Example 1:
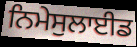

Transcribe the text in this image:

ਨਿਮੇਸੁਲਾਈਡ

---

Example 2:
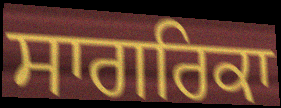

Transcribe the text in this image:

ਸਾਗਰਿਕਾ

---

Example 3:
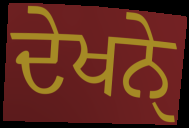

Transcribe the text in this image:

ਦੇਖਨੑੇ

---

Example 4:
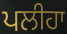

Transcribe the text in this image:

ਪਲੀਹਾ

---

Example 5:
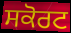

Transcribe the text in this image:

ਸਕੋਰਟ